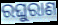
ରଘୁରାଣ